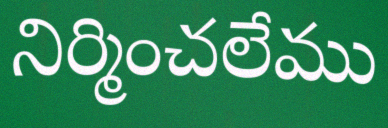
నిర్మించలేము